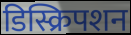
डिस्क्रिपशन